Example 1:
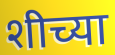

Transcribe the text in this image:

शीच्या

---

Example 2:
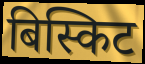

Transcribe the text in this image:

बिस्किट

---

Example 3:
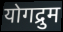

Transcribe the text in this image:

योगद्रुम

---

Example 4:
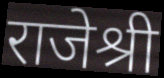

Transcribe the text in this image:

राजेश्री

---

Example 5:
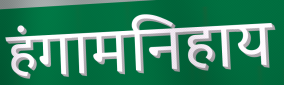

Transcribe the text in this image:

हंगामनिहाय